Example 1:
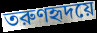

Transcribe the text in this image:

তরুণহৃদয়ে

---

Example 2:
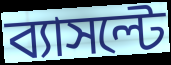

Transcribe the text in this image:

ব্যাসল্টে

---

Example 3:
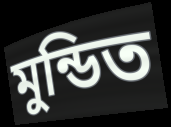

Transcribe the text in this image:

মুন্ডিত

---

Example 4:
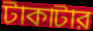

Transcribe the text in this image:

টাকাটার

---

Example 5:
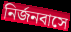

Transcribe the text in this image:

নির্জনবাসে